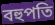
বহুপতি